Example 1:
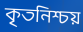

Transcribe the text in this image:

কৃতনিশ্চয়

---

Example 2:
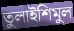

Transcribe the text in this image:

তুলাইশিমুল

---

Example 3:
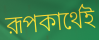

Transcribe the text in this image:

রূপকার্থেই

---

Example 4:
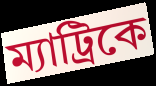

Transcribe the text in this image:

ম্যাট্রিকে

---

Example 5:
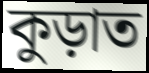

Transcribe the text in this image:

কুড়াত